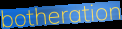
botheration